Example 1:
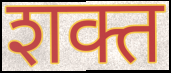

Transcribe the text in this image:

शक्त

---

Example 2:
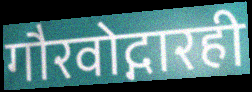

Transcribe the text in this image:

गौरवोद्गारही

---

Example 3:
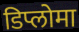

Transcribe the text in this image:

डिप्लोमा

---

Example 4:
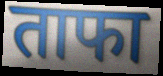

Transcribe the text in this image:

ताफा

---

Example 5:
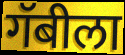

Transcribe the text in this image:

गॅबीला